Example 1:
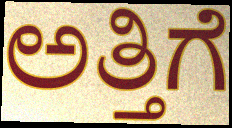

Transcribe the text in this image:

ಅತ್ತಿಗೆ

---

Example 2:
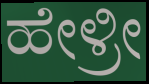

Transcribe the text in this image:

ಹೇಳ್ರೀ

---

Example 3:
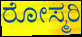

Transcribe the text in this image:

ರೋಸ್ಮರಿ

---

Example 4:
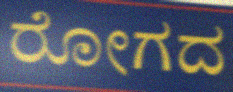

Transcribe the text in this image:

ರೋಗದ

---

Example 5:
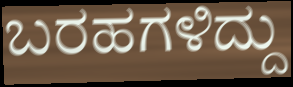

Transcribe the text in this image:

ಬರಹಗಳಿದ್ದು